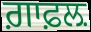
ਗ਼ਾਫ਼ਲ਼